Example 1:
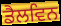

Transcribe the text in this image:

ਡੈਲਵਿਨ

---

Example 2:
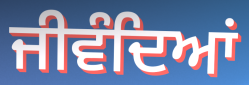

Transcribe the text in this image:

ਜੀਵੰਦਿਆਂ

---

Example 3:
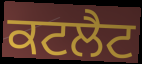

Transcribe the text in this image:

ਕਟਲੈਟ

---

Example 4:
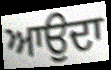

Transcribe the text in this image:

ਆਉਦਾ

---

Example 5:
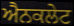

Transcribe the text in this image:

ਐਨਕਲੇਟ